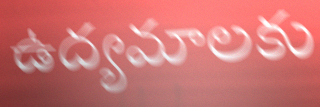
ఉద్యమాలకు